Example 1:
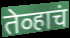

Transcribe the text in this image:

तेव्हाचं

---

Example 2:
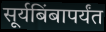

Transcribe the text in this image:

सूर्यबिंबापर्यंत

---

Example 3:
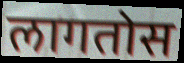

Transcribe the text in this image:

लागतोस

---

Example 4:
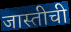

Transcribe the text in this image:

जास्तीची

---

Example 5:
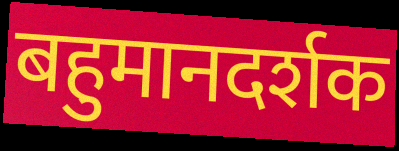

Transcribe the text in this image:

बहुमानदर्शक